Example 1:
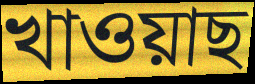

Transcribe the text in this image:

খাওয়াছ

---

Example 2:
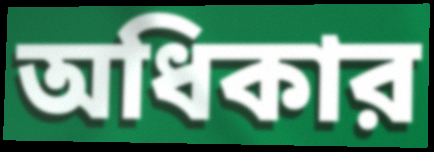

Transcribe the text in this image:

অধিকার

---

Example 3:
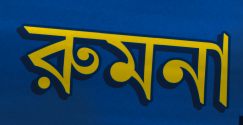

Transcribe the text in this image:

রুমনা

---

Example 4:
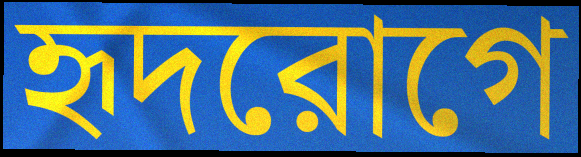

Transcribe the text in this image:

হৃদরোগে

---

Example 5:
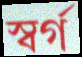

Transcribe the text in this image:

স্বর্গ